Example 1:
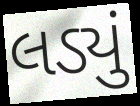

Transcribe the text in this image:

લડ્યું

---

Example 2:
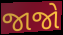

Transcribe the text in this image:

જાજો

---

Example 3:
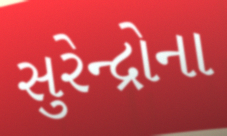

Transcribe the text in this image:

સુરેન્દ્રોના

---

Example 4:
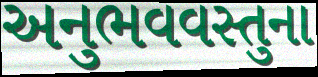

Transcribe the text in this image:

અનુભવવસ્તુના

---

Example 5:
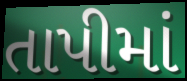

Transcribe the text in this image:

તાપીમાં